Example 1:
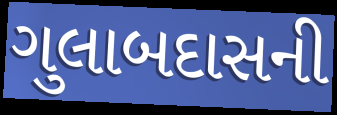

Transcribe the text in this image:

ગુલાબદાસની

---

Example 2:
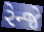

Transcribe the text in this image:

રેન્જે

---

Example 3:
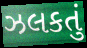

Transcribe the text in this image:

ઝલકતું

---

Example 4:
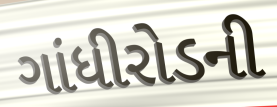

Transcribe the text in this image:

ગાંધીરોડની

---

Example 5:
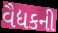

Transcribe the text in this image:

વૈદ્યકની